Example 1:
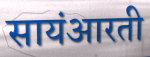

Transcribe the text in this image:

सायंआरती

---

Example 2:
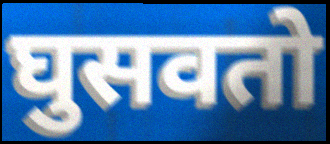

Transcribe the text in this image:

घुसवतो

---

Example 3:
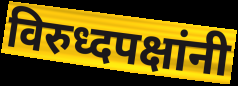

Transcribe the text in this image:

विरुध्दपक्षांनी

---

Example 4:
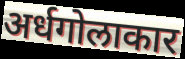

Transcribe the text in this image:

अर्धगोलाकार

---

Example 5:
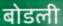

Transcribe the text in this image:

बोडली